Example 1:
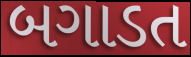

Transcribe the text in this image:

બગાડત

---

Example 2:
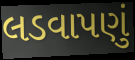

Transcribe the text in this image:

લડવાપણું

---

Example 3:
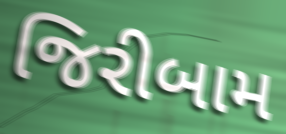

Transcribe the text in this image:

જિરીબામ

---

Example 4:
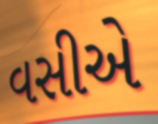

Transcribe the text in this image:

વસીએ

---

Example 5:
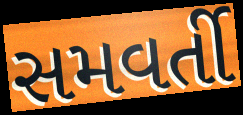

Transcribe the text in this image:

સમવર્તી